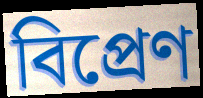
বিপ্রেণ